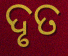
ଦୃତ